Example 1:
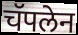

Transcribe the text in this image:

चॅपलेन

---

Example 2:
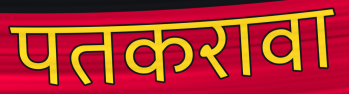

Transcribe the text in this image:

पतकरावा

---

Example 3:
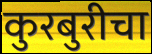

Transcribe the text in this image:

कुरबुरीचा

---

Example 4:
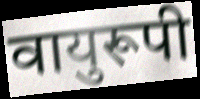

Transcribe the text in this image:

वायुरूपी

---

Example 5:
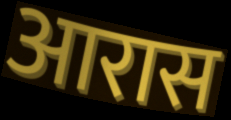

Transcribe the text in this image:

आरास